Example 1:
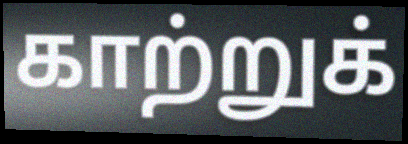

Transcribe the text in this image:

காற்றுக்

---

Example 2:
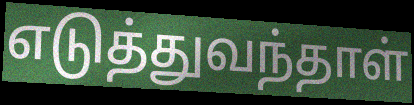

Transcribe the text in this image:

எடுத்துவந்தாள்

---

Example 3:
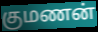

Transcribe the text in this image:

குமணன்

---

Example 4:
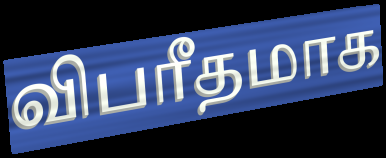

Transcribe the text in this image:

விபரீதமாக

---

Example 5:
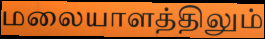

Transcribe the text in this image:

மலையாளத்திலும்